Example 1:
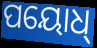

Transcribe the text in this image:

ପୟୋଧ୍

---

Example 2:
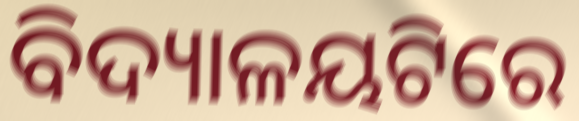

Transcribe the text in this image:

ବିଦ୍ୟାଳୟଟିରେ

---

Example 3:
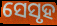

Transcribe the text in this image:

ସେସୃହ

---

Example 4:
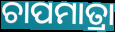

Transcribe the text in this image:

ଚାପମାତ୍ରା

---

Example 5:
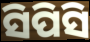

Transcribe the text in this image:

ସିପିସି